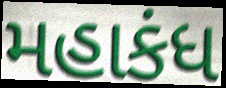
મહાકંધ